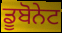
ਡੂਬੋਨੇਟ